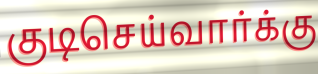
குடிசெய்வார்க்கு